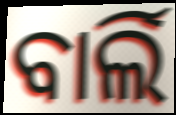
ବାର୍ଲି